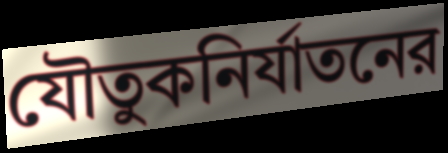
যৌতুকনির্যাতনের